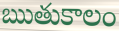
ఋతుకాలం